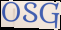
OSG